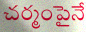
చర్మంపైనే